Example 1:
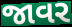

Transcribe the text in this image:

જાવર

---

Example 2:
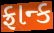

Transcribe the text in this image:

ફ્રાન્ક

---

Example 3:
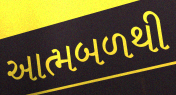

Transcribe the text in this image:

આત્મબળથી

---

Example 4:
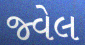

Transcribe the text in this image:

જ્વેલ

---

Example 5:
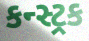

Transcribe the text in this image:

કન્સ્ટ્રક